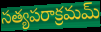
సత్యపరాక్రమమ్